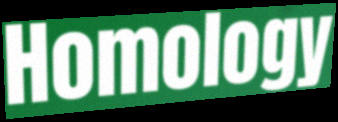
Homology